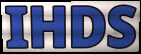
IHDS